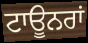
ਟਾਊਨਰਾਂ